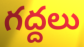
గద్దలు